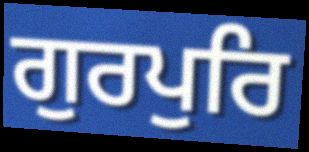
ਗੁਰਪੁਰਿ